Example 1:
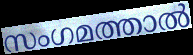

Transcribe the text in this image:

സംഗമത്താൽ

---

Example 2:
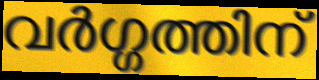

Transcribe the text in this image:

വർഗ്ഗത്തിന്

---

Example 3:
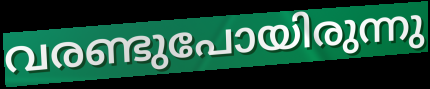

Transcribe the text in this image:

വരണ്ടുപോയിരുന്നു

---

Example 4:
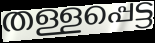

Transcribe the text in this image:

തള്ളപ്പെട്ട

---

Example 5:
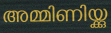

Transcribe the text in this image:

അമ്മിണിയ്ക്കു